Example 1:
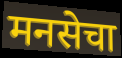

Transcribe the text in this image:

मनसेचा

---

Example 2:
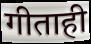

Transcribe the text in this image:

गीताही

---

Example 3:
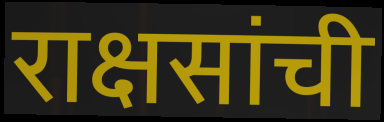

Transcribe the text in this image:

राक्षसांची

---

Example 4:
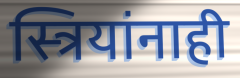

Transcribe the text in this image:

स्त्रियांनाही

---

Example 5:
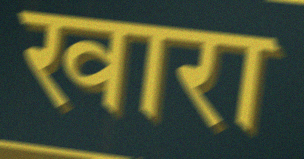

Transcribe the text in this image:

खारा